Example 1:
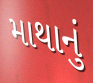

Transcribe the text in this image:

માથાનું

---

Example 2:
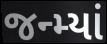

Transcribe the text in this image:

જન્મ્યાં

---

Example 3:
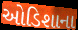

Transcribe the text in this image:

ઓડિશાના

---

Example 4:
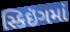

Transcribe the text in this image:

સ્કિઇંગમાં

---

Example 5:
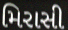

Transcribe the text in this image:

મિરાસી